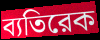
ব্যতিরেক